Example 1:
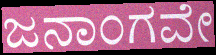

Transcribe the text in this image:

ಜನಾಂಗವೇ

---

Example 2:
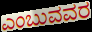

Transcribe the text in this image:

ಎಂಬುವವರ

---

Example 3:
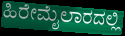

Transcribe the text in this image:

ಹಿರೇಮೈಲಾರದಲ್ಲಿ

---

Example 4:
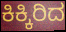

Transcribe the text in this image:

ಕಿಕ್ಕಿರಿದ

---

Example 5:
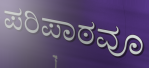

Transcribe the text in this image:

ಪರಿಪಾಠವೂ